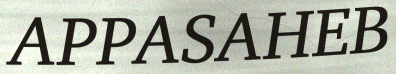
APPASAHEB